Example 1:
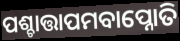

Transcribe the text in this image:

ପଶ୍ଚାତ୍ତାପମବାପ୍ନୋତି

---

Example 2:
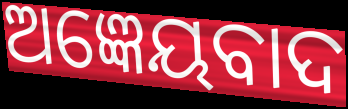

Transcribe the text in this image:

ଅଜ୍ଞେୟବାଦ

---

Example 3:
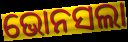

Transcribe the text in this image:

ଭୋନସଲା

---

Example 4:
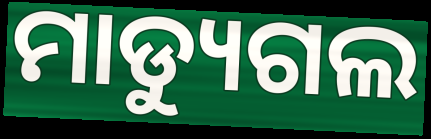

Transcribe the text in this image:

ମାଡ୍ୟୁଗଲ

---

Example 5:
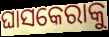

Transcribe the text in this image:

ଘାସକେରାକୁ